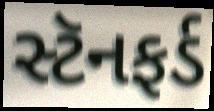
સ્ટૅનફર્ડ